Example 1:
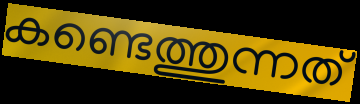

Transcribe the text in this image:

കണ്ടെത്തുന്നത്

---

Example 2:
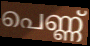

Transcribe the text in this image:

പെണ്ണ്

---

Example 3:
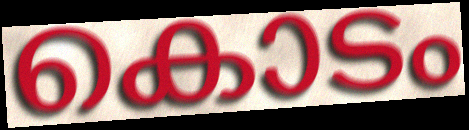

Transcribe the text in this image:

കൊടം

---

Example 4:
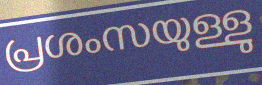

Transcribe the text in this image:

പ്രശംസയുള്ളു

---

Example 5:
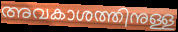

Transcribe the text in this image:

അവകാശത്തിനുള്ള